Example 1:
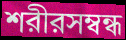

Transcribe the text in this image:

শরীরসম্বন্ধ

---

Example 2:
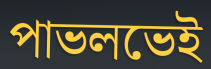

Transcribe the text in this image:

পাভলভেই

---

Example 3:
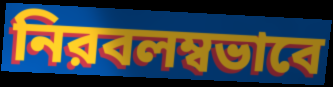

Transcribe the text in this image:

নিরবলম্বভাবে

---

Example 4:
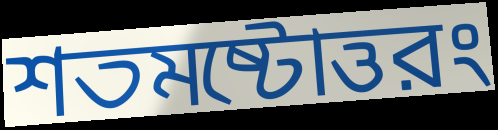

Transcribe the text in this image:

শতমষ্টোত্তরং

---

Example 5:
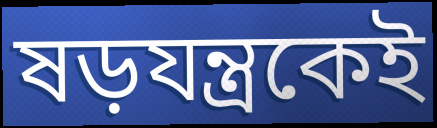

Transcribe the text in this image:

ষড়যন্ত্রকেই